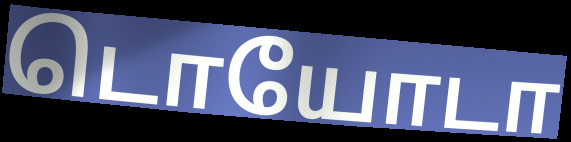
டொயோடா